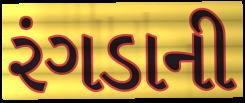
રંગડાની